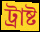
ট্ৰাষ্ট